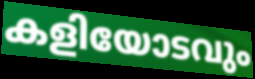
കളിയോടവും